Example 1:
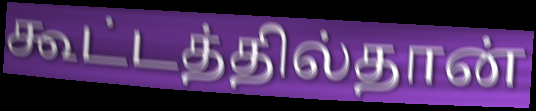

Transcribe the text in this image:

கூட்டத்தில்தான்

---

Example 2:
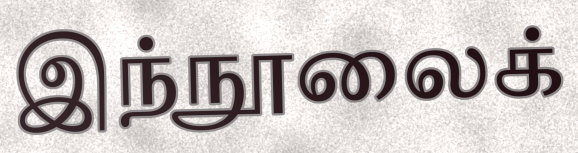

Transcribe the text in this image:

இந்நூலைக்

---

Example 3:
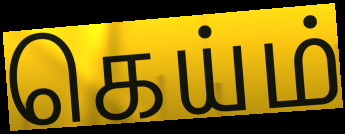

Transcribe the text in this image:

கெய்ம்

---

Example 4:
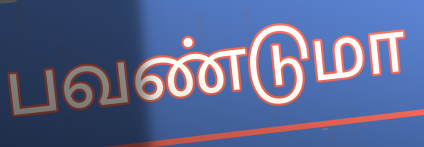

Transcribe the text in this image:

பவண்டுமா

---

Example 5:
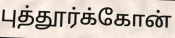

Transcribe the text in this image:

புத்தூர்க்கோன்